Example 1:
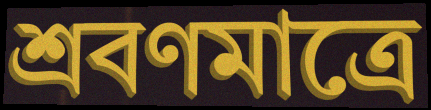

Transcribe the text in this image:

শ্রবণমাত্রে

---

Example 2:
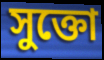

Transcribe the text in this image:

সুক্তো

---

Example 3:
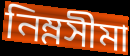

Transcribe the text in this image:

নিম্নসীমা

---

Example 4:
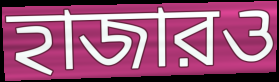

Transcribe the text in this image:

হাজারও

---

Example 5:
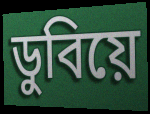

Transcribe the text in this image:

ডুবিয়ে